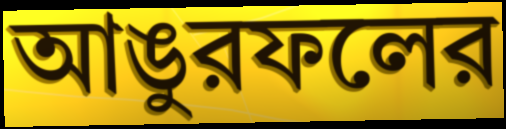
আঙুরফলের